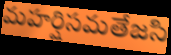
మహర్షిసమతేజసి